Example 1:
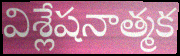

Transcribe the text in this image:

విశ్లేషనాత్మక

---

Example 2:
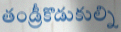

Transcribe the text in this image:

తండ్రీకొడుకుల్ని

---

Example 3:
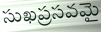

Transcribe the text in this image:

సుఖప్రసవమై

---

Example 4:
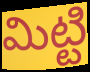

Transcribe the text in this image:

మిట్టి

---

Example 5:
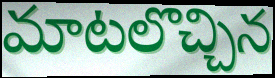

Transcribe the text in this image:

మాటలొచ్చిన